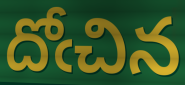
దోఁచిన